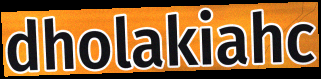
dholakiahc